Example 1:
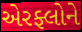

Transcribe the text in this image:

એરફ્લોને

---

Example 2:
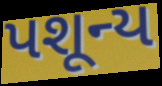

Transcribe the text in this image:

પશૂન્ય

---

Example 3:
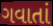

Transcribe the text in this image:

ગવાતાં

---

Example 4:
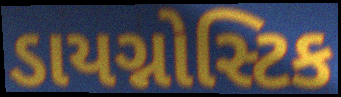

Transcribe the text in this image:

ડાયગ્નોસ્ટિક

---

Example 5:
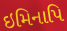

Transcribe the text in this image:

ઇમિનાપિ